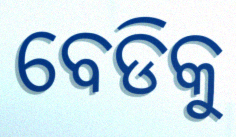
ବେଡିକୁ